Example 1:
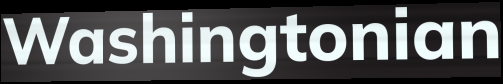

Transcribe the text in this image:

Washingtonian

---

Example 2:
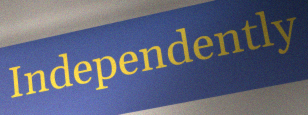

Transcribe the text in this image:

Independently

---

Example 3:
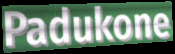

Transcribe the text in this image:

Padukone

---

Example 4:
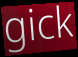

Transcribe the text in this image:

gick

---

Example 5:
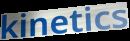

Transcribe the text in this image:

kinetics